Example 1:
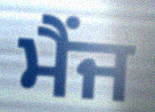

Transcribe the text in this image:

ਮੈਂਜ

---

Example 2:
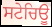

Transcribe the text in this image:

ਸਟੇਚਿਊ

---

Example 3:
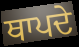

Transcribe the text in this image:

ਥਾਪਦੇ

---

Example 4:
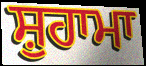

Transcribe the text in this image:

ਸ਼ੁਹਾਮਾ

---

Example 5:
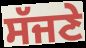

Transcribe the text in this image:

ਸੱਜਣੇ